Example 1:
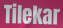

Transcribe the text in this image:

Tilekar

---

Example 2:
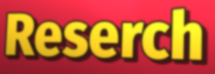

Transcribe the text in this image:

Reserch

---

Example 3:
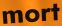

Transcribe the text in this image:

mort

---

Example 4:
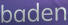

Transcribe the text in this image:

baden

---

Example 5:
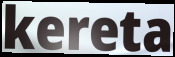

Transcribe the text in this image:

kereta